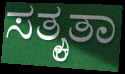
ಸತ್ಕೃತಾ